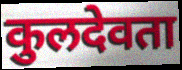
कुलदेवता